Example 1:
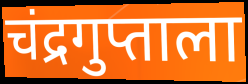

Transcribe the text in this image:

चंद्रगुप्ताला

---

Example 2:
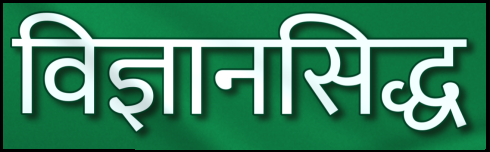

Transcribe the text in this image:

विज्ञानसिद्ध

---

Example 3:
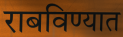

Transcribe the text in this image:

राबविण्‍यात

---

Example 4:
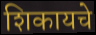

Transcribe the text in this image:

शिकायचे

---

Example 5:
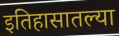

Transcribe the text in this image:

इतिहासातल्या